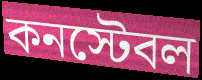
কনস্টেবল